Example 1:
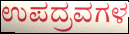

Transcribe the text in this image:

ಉಪದ್ರವಗಳ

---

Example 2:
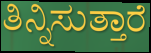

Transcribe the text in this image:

ತಿನ್ನಿಸುತ್ತಾರೆ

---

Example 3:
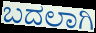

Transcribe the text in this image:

ಬದಲಾಗಿ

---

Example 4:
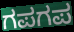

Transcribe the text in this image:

ಗಪಗಪ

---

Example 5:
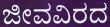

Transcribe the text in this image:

ಜೀವವಿರದ